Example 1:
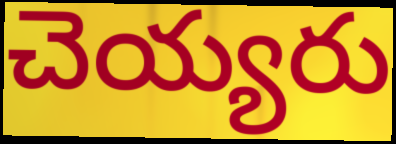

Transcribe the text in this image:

చెయ్యరు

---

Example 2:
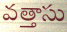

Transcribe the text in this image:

వత్తాసు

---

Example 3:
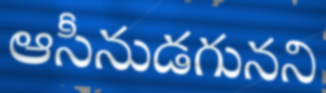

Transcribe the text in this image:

ఆసీనుడగునని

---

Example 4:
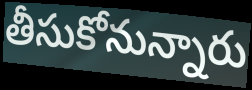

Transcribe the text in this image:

తీసుకోనున్నారు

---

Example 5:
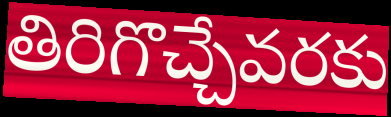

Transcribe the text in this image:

తిరిగొచ్చేవరకు